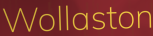
Wollaston